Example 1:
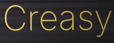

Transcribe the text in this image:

Creasy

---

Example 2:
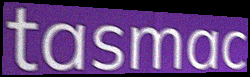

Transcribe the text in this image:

tasmac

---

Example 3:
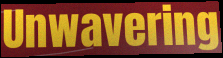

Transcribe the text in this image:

Unwavering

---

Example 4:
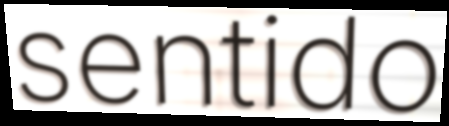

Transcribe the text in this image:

sentido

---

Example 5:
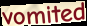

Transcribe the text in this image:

vomited